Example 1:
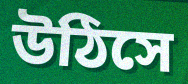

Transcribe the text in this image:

উঠিসে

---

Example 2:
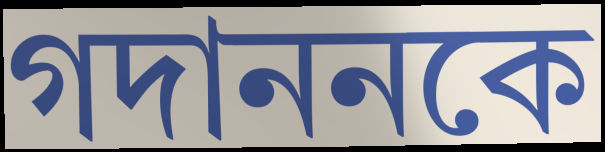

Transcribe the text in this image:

গদাননকে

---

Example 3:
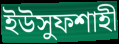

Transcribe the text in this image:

ইউসুফশাহী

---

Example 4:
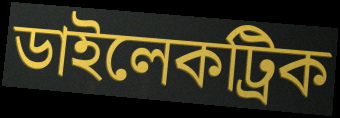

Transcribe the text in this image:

ডাইলেকট্রিক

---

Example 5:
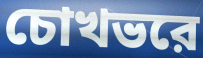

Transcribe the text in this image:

চোখভরে